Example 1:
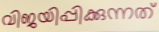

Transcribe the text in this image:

വിജയിപ്പിക്കുന്നത്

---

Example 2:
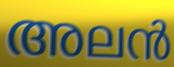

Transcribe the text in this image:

അലൻ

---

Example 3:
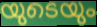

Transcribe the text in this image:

യുടെയും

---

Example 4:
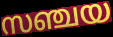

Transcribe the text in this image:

സഞ്ചയ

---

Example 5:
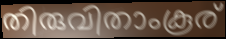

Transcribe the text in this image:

തിരുവിതാംകൂര്